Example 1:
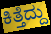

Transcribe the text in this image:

ಕಿತ್ತೆದ್ದು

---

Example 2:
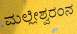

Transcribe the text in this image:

ಮಲ್ಲೇಶ್ವರಂನ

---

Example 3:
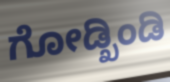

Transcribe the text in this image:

ಗೋಡ್ಖಿಂಡಿ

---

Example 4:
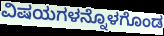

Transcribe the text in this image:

ವಿಷಯಗಳನ್ನೊಳಗೊಂಡ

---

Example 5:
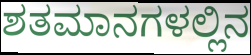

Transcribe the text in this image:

ಶತಮಾನಗಳಲ್ಲಿನ